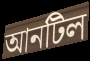
আনটিল